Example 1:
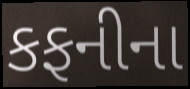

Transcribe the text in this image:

કફનીના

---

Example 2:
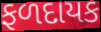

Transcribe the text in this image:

ફળદાયક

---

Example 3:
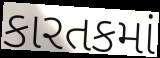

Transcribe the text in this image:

કારતકમાં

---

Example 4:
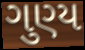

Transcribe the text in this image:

ગુણ્ય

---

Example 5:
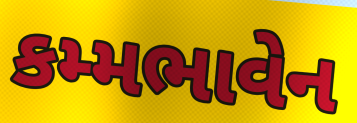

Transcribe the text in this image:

કમ્મભાવેન